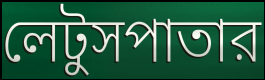
লেটুসপাতার